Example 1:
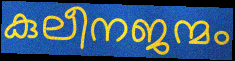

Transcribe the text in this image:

കുലീനജന്മം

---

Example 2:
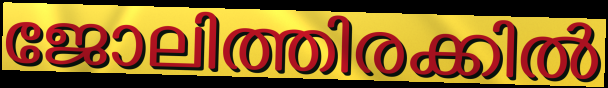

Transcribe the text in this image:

ജോലിത്തിരക്കിൽ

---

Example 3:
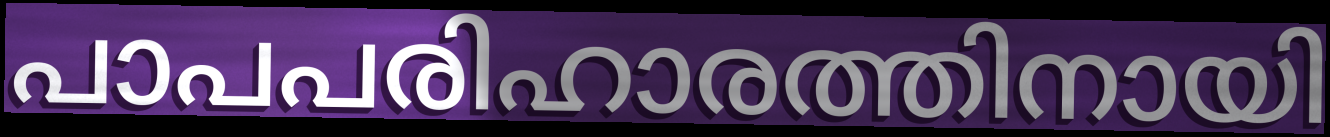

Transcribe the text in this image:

പാപപരിഹാരത്തിനായി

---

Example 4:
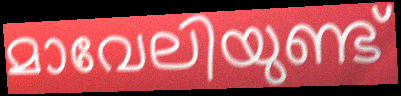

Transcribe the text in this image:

മാവേലിയുണ്ട്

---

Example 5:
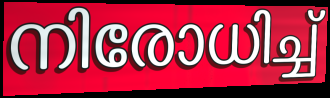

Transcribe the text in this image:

നിരോധിച്ച്